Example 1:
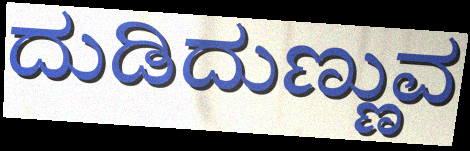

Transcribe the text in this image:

ದುಡಿದುಣ್ಣುವ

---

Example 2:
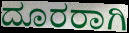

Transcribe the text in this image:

ದೂರರಾಗಿ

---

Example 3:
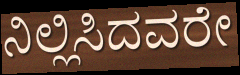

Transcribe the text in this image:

ನಿಲ್ಲಿಸಿದವರೇ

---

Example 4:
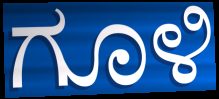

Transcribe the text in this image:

ಗೂಳಿ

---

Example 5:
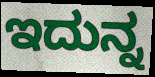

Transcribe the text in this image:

ಇದುನ್ನ